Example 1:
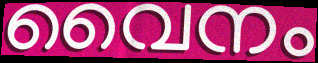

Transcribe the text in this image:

വൈനം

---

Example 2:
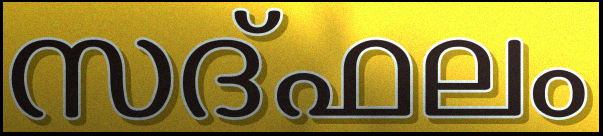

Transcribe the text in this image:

സദ്ഫലം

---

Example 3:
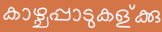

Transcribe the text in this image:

കാഴ്ചപ്പാടുകള്ക്കു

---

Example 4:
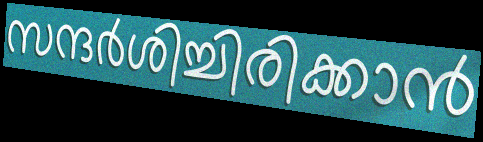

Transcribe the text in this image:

സന്ദർശിച്ചിരിക്കാൻ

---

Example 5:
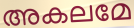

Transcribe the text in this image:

അകലമേ